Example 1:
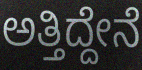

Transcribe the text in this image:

ಅತ್ತಿದ್ದೇನೆ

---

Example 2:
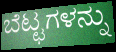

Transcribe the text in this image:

ಬೆಟ್ಟಗಳನ್ನು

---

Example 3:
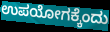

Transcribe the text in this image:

ಉಪಯೋಗಕ್ಕೆಂದು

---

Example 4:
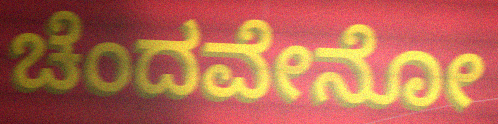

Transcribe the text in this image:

ಚೆಂದವೇನೋ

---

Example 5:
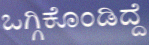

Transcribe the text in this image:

ಒಗ್ಗಿಕೊಂಡಿದ್ದೆ